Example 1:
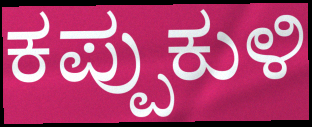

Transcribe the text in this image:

ಕಪ್ಪುಕುಳಿ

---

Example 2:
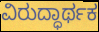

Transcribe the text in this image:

ವಿರುದ್ಧಾರ್ಥಕ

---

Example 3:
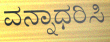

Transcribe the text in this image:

ವನ್ನಾಧರಿಸಿ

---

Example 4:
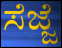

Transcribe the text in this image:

ಸೆಜ್ಜೆ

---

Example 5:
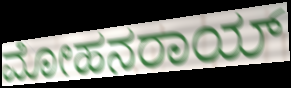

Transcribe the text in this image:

ಮೋಹನರಾಯ್